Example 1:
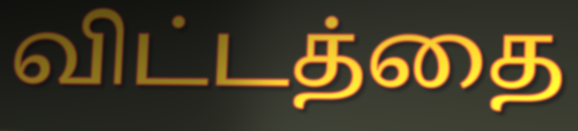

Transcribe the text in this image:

விட்டத்தை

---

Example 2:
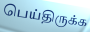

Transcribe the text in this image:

பெய்திருக்க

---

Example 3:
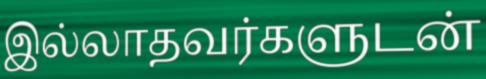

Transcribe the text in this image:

இல்லாதவர்களுடன்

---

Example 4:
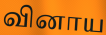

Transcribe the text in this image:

வினாய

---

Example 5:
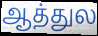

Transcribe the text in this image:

ஆத்துல